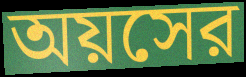
অয়সের